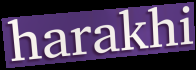
harakhi